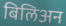
बिलिअन